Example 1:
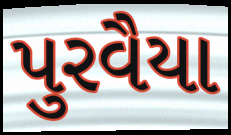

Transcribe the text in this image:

પુરવૈયા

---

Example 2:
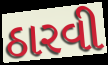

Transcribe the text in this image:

ઠારવી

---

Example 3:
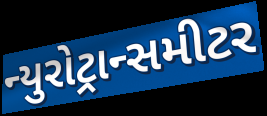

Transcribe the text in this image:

ન્યુરોટ્રાન્સમીટર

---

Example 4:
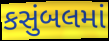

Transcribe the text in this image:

કસુંબલમાં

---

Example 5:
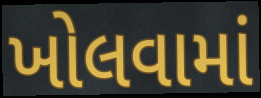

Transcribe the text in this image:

ખોલવામાં